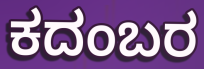
ಕದಂಬರ